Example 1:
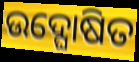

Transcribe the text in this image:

ଉଦ୍ଘୋଷିତ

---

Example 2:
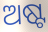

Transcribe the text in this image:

ଅଷ୍ଟ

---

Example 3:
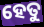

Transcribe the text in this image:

ହେତୁ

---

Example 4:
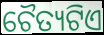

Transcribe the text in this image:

ଚୈତ୍ୟଟିଏ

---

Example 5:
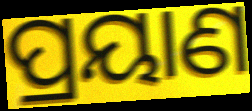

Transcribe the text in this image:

ପ୍ରୟାଣ